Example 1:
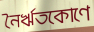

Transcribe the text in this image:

নৈর্ঋতকোণে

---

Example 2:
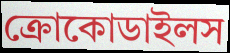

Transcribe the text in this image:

ক্রোকোডাইলস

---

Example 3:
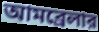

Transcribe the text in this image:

আমব্রেলার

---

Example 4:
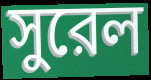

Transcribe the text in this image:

সুরেল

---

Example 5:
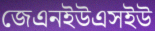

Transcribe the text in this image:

জেএনইউএসইউ